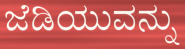
ಜೆಡಿಯುವನ್ನು